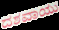
ದಶವಾಯು